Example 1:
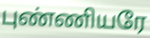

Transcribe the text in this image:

புண்ணியரே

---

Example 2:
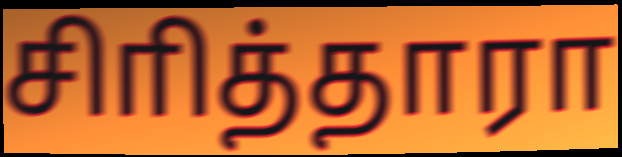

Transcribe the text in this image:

சிரித்தாரா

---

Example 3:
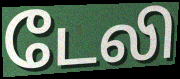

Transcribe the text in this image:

டேலி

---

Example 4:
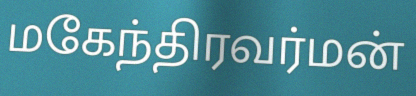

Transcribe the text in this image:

மகேந்திரவர்மன்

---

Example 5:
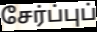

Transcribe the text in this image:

சேர்ப்புப்